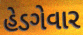
હેડગેવાર